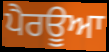
ਪੈਰਊਆ